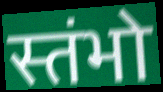
स्तंभो